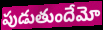
పుడుతుందేమో